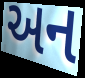
અન